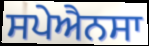
ਸਪੇਐਨਸਾ